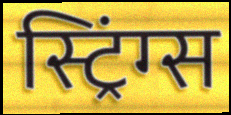
स्ट्रिंग्स